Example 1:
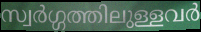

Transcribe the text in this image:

സ്വർഗ്ഗത്തിലുള്ളവർ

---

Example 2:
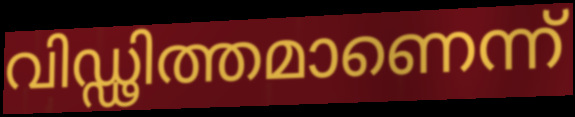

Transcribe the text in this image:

വിഡ്ഢിത്തമാണെന്ന്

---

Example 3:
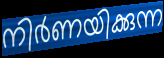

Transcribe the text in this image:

നിർണയിക്കുന്ന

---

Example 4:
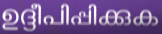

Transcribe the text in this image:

ഉദ്ദീപിപ്പിക്കുക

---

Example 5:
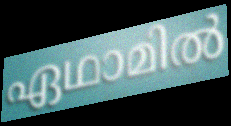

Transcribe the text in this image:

ഏഥാമിൽ